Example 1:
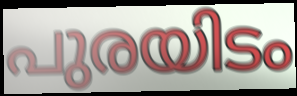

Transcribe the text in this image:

പുരയിടം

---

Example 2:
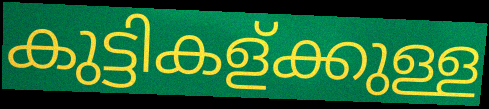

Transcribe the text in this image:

കുട്ടികള്ക്കുള്ള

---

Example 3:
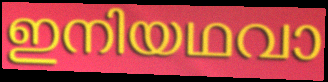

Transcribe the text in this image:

ഇനിയഥവാ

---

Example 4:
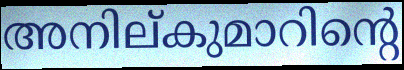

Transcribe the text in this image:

അനില്കുമാറിന്റെ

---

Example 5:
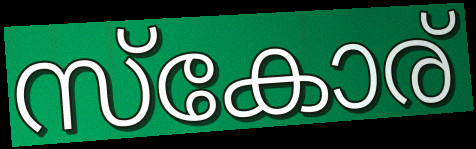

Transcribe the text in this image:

സ്കോര്